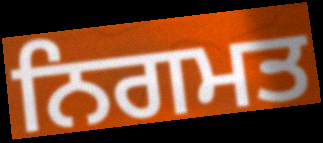
ਨਿਗਮਤ